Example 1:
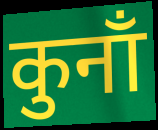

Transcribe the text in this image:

कुनाँ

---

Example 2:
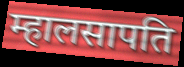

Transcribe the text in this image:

म्हालसापति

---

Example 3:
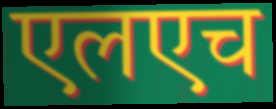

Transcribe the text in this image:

एलएच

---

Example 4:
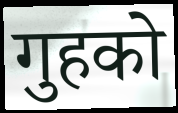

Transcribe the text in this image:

गुहको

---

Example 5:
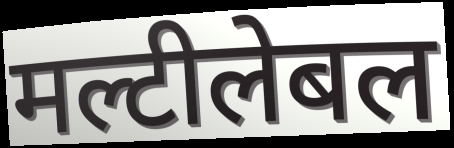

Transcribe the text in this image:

मल्टीलेबल